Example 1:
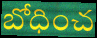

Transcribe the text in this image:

బోధించ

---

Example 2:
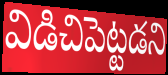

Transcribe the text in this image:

విడిచిపెట్టడని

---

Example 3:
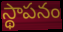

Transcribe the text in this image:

స్థాపనం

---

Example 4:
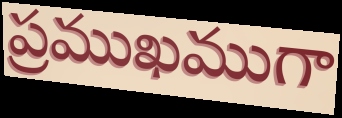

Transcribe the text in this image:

ప్రముఖముగా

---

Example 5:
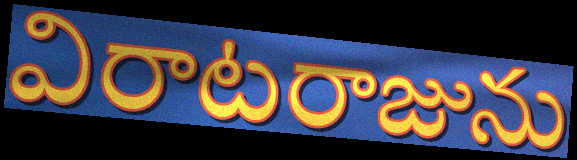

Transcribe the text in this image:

విరాటరాజును